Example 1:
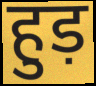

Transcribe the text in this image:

हुड़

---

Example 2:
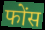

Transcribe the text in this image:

फोंस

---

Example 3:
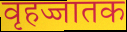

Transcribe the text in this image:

वृहज्जातक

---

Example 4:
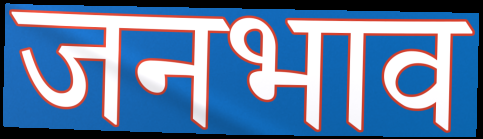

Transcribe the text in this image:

जनभाव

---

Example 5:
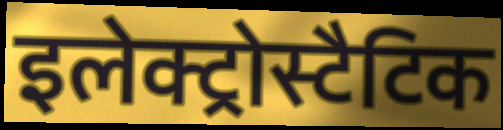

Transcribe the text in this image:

इलेक्ट्रोस्टैटिक